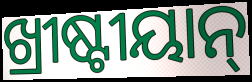
ଖ୍ରୀଷ୍ଟୀୟାନ୍